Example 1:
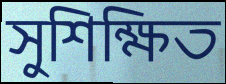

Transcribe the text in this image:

সুশিক্ষিত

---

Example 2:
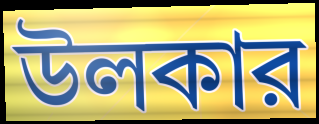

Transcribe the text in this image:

উলকার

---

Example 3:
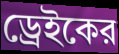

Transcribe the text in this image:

ড্রেইকের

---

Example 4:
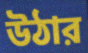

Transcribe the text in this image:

উঠার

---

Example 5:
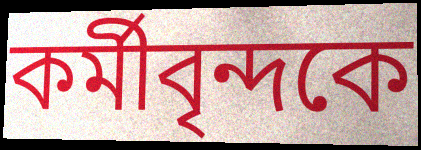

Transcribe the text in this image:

কর্মীবৃন্দকে